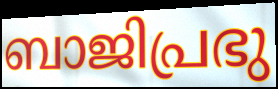
ബാജിപ്രഭു